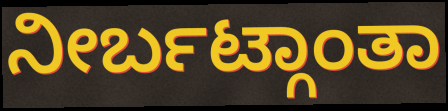
ನೀರ್ಬಟ್ಗಾಂತಾ